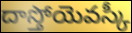
దాస్తోయెవస్కీ